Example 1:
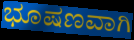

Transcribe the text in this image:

ಭೂಷಣವಾಗಿ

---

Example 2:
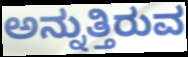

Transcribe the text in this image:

ಅನ್ನುತ್ತಿರುವ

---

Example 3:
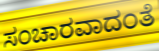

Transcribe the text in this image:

ಸಂಚಾರವಾದಂತೆ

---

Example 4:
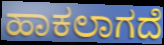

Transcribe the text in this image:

ಹಾಕಲಾಗದೆ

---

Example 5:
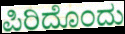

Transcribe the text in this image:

ಪಿರಿದೊಂದು